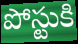
పోస్టుకి